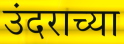
उंदराच्या